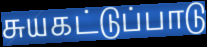
சுயகட்டுப்பாடு